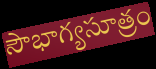
సౌభాగ్యసూత్రం